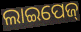
ଲାଇପେଜ୍